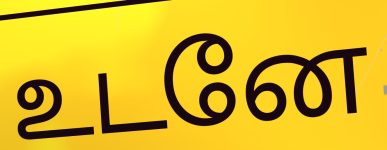
உடனே